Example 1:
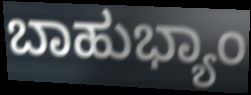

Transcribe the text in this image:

ಬಾಹುಭ್ಯಾಂ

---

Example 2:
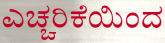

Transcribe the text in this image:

ಎಚ್ಚರಿಕೆಯಿಂದ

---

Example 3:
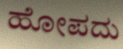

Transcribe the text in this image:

ಹೋಪದು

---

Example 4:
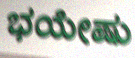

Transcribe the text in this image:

ಭಯೇಷು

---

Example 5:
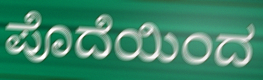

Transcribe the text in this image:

ಪೊದೆಯಿಂದ